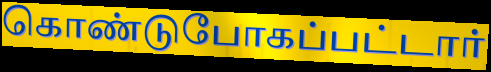
கொண்டுபோகப்பட்டார்